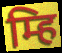
म्हि